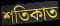
শতিকাত